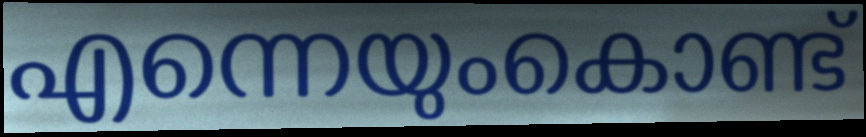
എന്നെയുംകൊണ്ട്